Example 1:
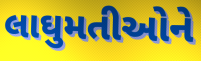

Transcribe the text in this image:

લાઘુમતીઓને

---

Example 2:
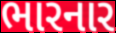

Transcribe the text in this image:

ભારનાર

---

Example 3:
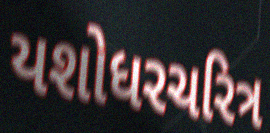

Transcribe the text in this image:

યશોધરચરિત્ર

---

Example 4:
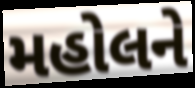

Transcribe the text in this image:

મહોલને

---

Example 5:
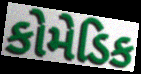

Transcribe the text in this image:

કોમેડિક